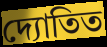
দ্যোতিত